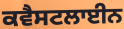
ਕਵੈਸਟਲਾਈਨ